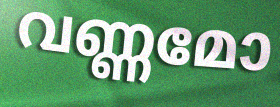
വണ്ണമോ